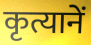
कृत्यानें